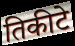
तिकीटे